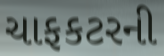
ચાફકટરની